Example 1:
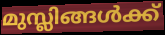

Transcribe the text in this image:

മുസ്ലിങ്ങൾക്ക്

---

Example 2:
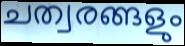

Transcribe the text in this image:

ചത്വരങ്ങളും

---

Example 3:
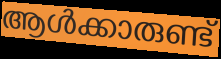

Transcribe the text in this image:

ആൾക്കാരുണ്ട്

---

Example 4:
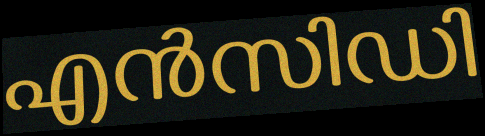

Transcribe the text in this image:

എൻസിഡി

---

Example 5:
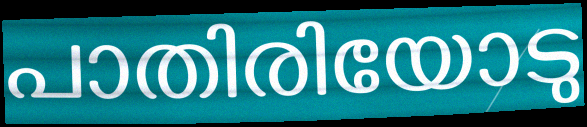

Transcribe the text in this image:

പാതിരിയോടു